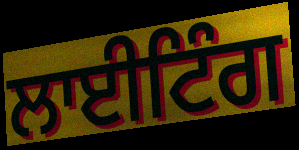
ਲਾਈਟਿੰਗ